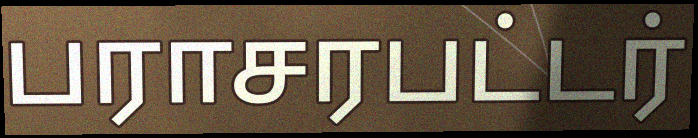
பராசரபட்டர்